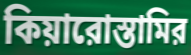
কিয়ারোস্তামির